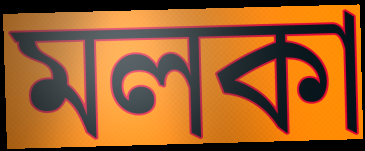
মলকা